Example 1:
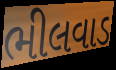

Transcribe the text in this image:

ભીલવાડ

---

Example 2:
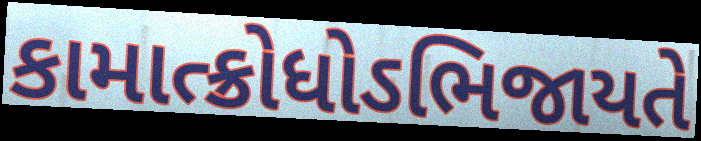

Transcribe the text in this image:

કામાત્ક્રોધોઽભિજાયતે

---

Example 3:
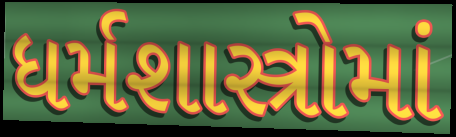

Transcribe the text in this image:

ધર્મશાસ્ત્રોમાં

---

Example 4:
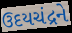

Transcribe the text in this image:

ઉદયચંદ્રને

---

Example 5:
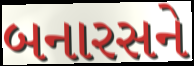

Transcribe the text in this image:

બનારસને